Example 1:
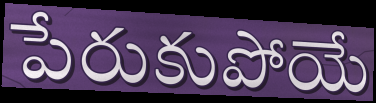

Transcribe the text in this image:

పేరుకుపోయే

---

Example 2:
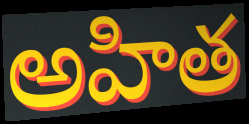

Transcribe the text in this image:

అహిత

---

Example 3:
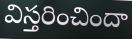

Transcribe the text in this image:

విస్తరించిందా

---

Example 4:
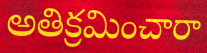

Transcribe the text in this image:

అతిక్రమించారా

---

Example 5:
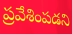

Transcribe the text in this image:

ప్రవేశింపడని